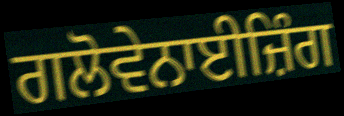
ਗਲੋਵੇਨਾਈਜ਼ਿੰਗ